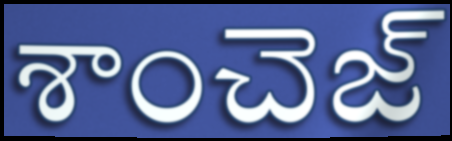
శాంచెజ్